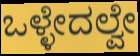
ಒಳ್ಳೇದಲ್ವೇ